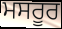
ਮਸਰੂਰ